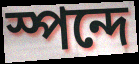
স্পন্দে